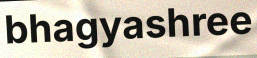
bhagyashree